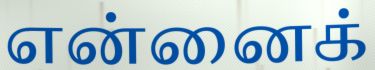
என்னைக்